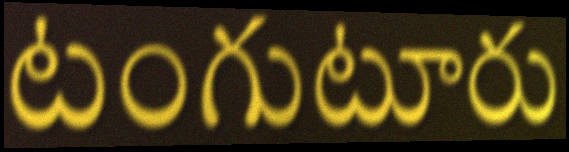
టంగుటూరు